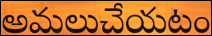
అమలుచేయటం